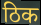
ठिक